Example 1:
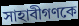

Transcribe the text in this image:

সাহাবীগণকে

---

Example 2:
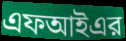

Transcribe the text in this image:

এফআইএর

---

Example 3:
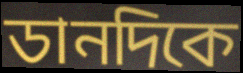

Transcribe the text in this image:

ডানদিকে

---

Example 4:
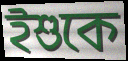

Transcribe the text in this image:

ইশুকে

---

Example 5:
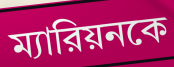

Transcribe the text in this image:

ম্যারিয়নকে